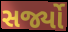
સર્જ્યો